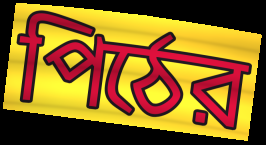
পিঠের